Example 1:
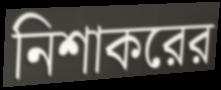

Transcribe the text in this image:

নিশাকরের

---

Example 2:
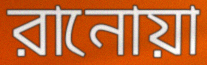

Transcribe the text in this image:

রানোয়া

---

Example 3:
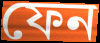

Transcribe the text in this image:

ফেন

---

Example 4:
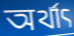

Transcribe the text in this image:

অর্থাৎ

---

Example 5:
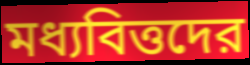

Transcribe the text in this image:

মধ্যবিত্তদের